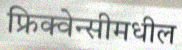
फ्रिक्वेन्सीमधील